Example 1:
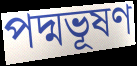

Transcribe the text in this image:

পদ্মভূষণ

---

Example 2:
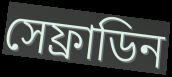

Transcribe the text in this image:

সেফ্রাডিন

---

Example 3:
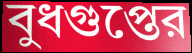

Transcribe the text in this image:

বুধগুপ্তের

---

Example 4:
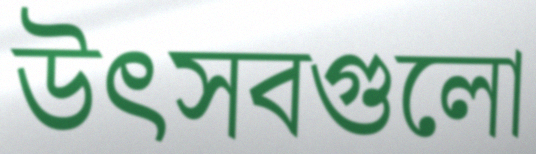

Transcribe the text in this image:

উৎসবগুলো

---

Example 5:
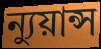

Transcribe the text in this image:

ন্যুয়ান্স